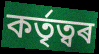
কৰ্তৃত্বৰ